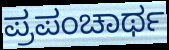
ಪ್ರಪಂಚಾರ್ಥ